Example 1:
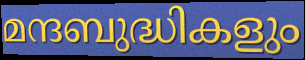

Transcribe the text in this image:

മന്ദബുദ്ധികളും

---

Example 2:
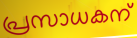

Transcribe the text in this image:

പ്രസാധകന്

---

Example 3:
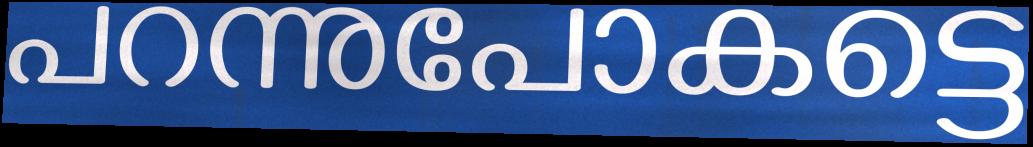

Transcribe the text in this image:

പറന്നുപോകട്ടെ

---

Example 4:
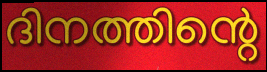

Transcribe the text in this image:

ദിനത്തിന്റെ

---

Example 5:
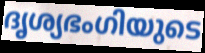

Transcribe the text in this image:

ദൃശ്യഭംഗിയുടെ